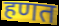
हणत